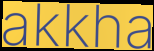
akkha